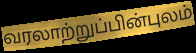
வரலாற்றுப்பின்புலம்